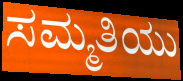
ಸಮ್ಮತಿಯು